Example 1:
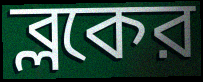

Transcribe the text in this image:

ব্লকের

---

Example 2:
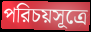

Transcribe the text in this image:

পরিচয়সূত্রে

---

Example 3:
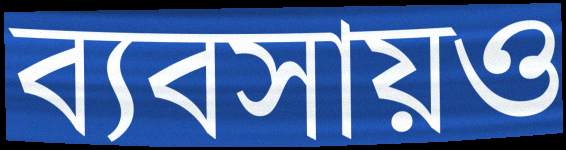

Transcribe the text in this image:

ব্যবসায়ও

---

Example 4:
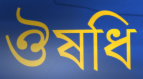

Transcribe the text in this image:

ঔষধি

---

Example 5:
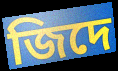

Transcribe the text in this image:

জিদে